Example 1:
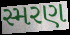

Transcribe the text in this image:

સ્મરણ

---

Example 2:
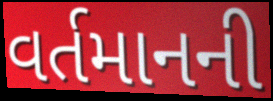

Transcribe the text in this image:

વર્તમાનની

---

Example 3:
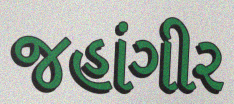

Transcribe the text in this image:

જહાંગીર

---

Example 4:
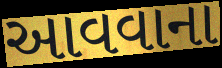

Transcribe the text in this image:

આવવાના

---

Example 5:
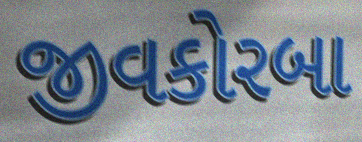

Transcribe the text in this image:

જીવકોરબા